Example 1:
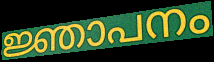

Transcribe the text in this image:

ജ്ഞാപനം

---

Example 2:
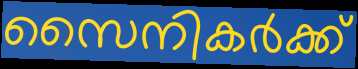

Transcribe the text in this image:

സൈനികർക്ക്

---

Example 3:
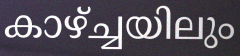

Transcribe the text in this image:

കാഴ്ച്ചയിലും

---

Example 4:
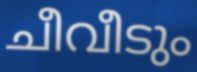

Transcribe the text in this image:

ചീവീടും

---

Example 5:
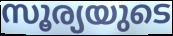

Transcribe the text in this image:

സൂര്യയുടെ